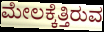
ಮೇಲಕ್ಕೆತ್ತಿರುವ